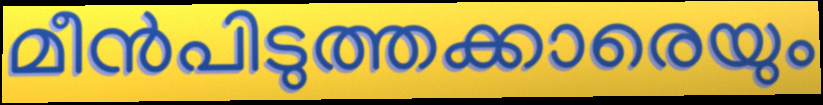
മീൻപിടുത്തക്കാരെയും